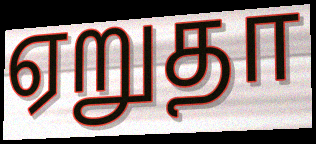
ஏறுதா